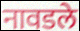
नावडले